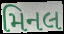
મિનલ